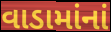
વાડામાંનાં